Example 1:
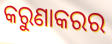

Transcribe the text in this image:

କରୁଣାକରର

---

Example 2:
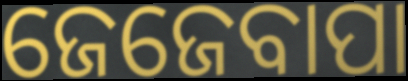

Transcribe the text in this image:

ଜେଜେବାପା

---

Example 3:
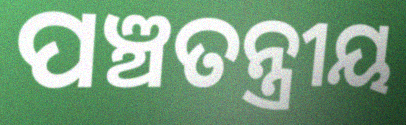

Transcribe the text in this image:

ପଞ୍ଚତନ୍ତ୍ରୀୟ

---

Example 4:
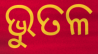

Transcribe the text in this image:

ଭୁତଳ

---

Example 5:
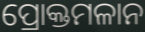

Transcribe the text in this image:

ପ୍ରୋକ୍ତମଳାନ